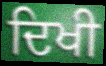
ਦਿਖੀ